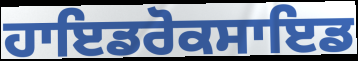
ਹਾਇਡਰੋਕਸਾਇਡ